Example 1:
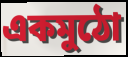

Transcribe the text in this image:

একমুঠো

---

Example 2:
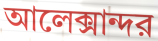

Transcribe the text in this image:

আলেক্সান্দর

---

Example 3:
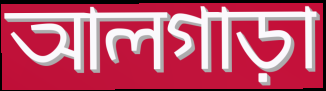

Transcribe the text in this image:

আলগাড়া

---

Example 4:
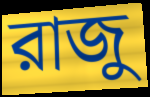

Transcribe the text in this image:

রাজু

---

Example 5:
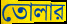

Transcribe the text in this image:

তোলার